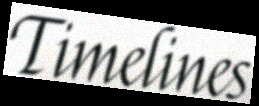
Timelines